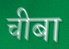
चीबा